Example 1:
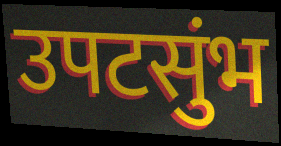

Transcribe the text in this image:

उपटसुंभ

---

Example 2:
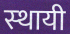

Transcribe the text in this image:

स्‍थायी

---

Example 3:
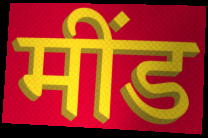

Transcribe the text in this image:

मींड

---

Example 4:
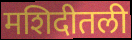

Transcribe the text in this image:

मशिदीतली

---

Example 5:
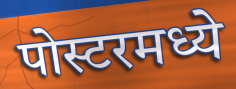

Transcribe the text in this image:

पोस्टरमध्ये